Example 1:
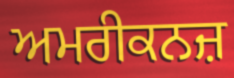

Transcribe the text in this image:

ਅਮਰੀਕਨਜ਼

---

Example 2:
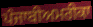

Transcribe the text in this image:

ਪੰਜਾਬੀਅਮਰੀਕਾ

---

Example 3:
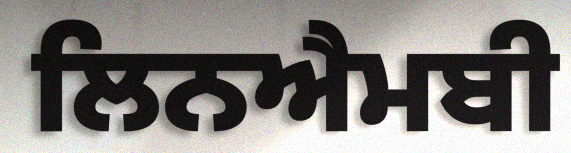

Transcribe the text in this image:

ਲਿਨਐਮਬੀ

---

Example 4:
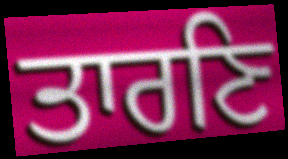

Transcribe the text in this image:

ਤਾਰਣਿ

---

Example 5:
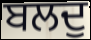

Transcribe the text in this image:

ਬਲਦੁ